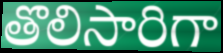
తొలిసారిగా